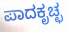
ಪಾದಕೃಚ್ಛ